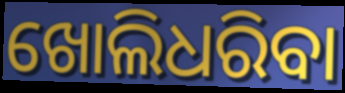
ଖୋଲିଧରିବା